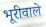
भूरीवाले